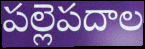
పల్లెపదాల